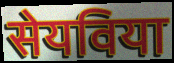
सेयविया